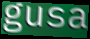
gusa